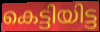
കെട്ടിയിട്ട